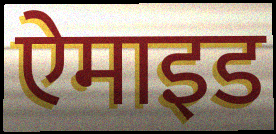
ऐमाइड